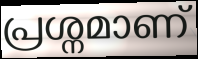
പ്രശ്നമാണ്